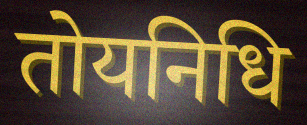
तोयनिधि